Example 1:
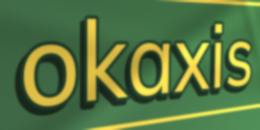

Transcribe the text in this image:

okaxis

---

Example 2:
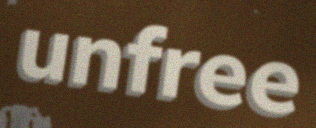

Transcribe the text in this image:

unfree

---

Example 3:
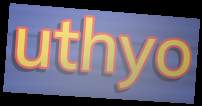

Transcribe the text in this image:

uthyo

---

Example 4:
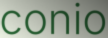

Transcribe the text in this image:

conio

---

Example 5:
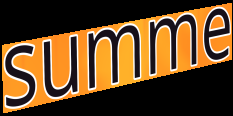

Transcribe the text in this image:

summe